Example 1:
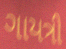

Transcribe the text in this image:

ગાયત્રી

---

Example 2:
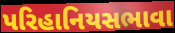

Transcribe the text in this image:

પરિહાનિયસભાવા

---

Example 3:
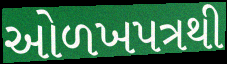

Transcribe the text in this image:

ઓળખપત્રથી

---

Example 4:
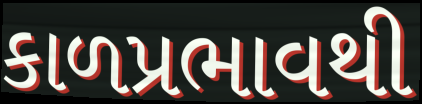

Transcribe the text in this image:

કાળપ્રભાવથી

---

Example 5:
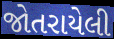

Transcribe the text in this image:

જોતરાયેલી